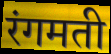
रंगमती